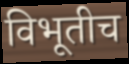
विभूतीच